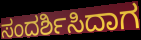
ಸಂದರ್ಶಿಸಿದಾಗ